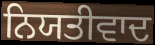
ਨਿਯਤੀਵਾਦ